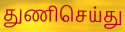
துணிசெய்து